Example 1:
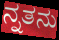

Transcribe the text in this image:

ನ್ನತನು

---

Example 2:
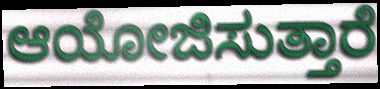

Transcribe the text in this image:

ಆಯೋಜಿಸುತ್ತಾರೆ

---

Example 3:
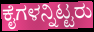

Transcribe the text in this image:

ಕೈಗಳನ್ನಿಟ್ಟರು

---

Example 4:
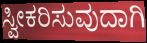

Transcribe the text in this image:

ಸ್ವೀಕರಿಸುವುದಾಗಿ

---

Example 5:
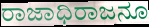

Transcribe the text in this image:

ರಾಜಾಧಿರಾಜನೂ